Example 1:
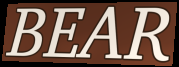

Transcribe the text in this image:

BEAR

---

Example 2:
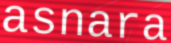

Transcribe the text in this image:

asnara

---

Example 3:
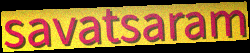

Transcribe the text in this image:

savatsaram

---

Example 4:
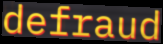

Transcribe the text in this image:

defraud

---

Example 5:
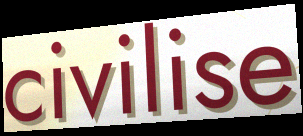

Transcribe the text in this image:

civilise